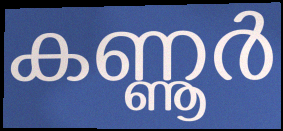
കണ്ണൂർ